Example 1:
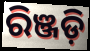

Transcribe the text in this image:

ରିଞ୍ଜଡ଼ି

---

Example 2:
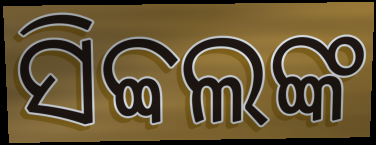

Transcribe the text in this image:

ସିବ୍ବଲଙ୍କ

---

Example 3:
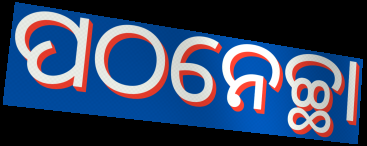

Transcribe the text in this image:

ପଠନେଚ୍ଛା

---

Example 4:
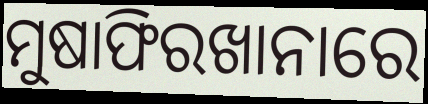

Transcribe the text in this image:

ମୁଷାଫିରଖାନାରେ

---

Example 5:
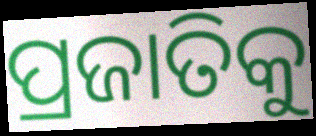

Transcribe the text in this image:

ପ୍ରଜାତିକୁ